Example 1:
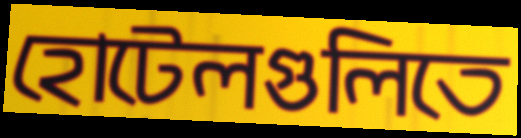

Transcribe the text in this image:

হোটেলগুলিতে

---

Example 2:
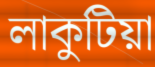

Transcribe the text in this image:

লাকুটিয়া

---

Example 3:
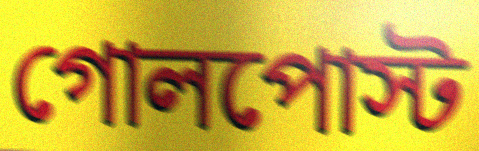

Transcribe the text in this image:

গোলপোস্ট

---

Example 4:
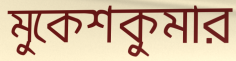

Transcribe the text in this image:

মুকেশকুমার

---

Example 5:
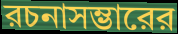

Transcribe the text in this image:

রচনাসম্ভারের